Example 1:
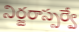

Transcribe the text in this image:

నిర్జరాస్సర్వే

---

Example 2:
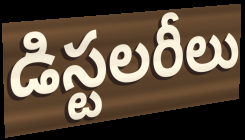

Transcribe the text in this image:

డిస్టలరీలు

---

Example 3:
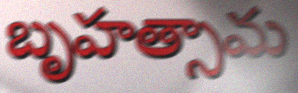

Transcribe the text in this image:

బృహత్సామ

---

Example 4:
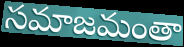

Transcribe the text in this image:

సమాజమంతా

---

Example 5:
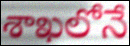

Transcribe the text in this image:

శాఖలోనే